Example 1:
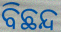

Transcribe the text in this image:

ବିଛନ୍ଦ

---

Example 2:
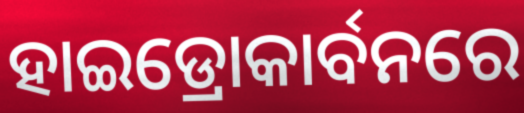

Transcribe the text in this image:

ହାଇଡ୍ରୋକାର୍ବନରେ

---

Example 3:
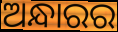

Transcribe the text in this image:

ଅନ୍ଧାରର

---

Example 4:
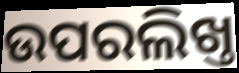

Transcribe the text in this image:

ଉପରଲିଖ୍ତ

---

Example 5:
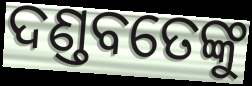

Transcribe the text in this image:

ଦଣ୍ଡବତେଙ୍କୁ